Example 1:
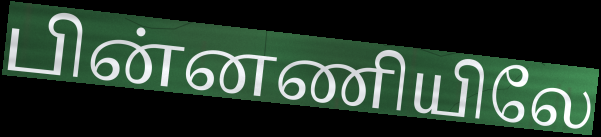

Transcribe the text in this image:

பின்னணியிலே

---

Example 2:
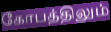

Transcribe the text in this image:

கோபத்திலும்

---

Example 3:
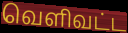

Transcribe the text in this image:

வெளிவட்ட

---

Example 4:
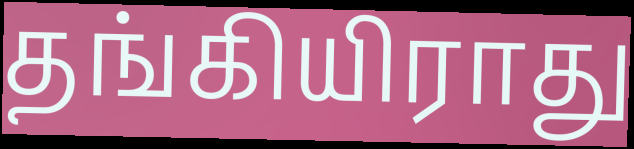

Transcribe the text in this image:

தங்கியிராது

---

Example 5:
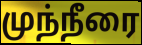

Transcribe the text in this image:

முந்நீரை